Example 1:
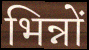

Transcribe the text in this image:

भिन्नों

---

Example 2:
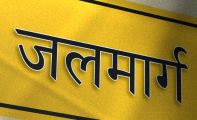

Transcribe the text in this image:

जलमार्ग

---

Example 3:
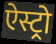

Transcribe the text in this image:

ऐस्ट्रो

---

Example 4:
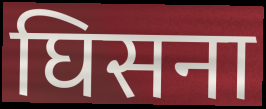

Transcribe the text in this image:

घिसना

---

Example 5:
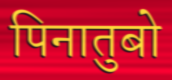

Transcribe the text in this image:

पिनातुबो